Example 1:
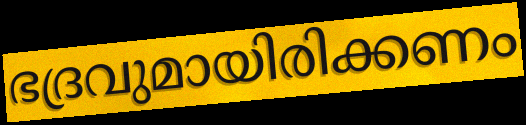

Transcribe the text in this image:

ഭദ്രവുമായിരിക്കണം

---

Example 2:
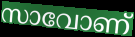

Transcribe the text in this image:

സാവോണ്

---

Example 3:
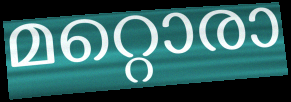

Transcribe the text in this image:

മറ്റൊരാ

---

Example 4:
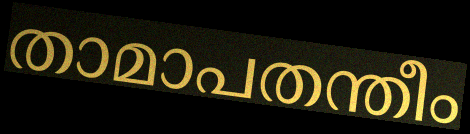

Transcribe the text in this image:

താമാപതന്തീം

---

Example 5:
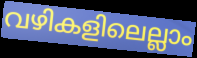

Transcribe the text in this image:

വഴികളിലെല്ലാം